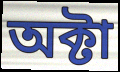
অক্টা